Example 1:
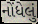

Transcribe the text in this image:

નોંધેલું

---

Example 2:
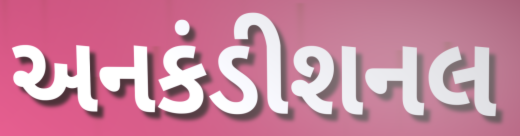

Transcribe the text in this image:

અનકંડીશનલ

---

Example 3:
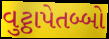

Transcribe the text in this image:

વુટ્ઠાપેતબ્બો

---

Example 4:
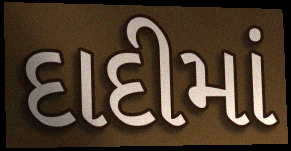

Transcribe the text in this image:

દાદીમાં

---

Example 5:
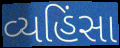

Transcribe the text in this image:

વ્યહિંસા